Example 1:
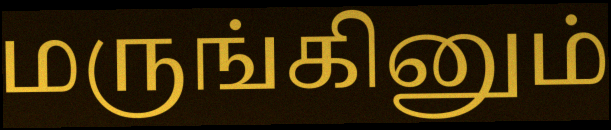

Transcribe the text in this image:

மருங்கினும்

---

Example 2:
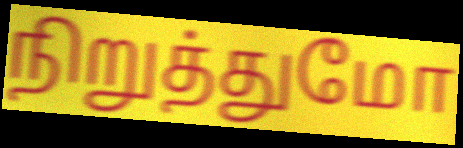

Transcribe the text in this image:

நிறுத்துமோ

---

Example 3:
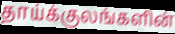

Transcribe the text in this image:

தாய்க்குலங்களின்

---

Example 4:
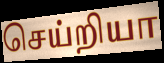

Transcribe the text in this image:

செய்றியா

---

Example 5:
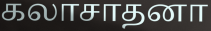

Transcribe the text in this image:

கலாசாதனா